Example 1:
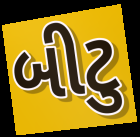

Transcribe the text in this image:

બીટુ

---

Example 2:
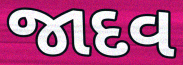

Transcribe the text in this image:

જાદવ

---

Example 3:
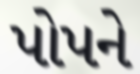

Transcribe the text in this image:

પોપને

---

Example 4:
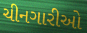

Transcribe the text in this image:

ચીનગારીઓ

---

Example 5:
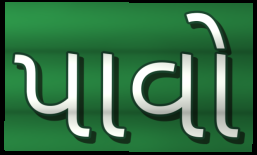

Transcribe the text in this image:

પાવો